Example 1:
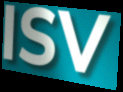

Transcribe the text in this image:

ISV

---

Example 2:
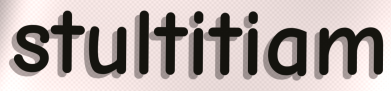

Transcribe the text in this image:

stultitiam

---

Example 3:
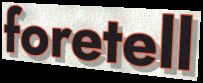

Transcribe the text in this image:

foretell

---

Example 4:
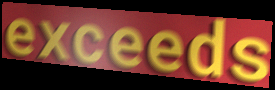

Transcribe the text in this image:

exceeds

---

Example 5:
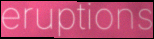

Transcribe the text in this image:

eruptions